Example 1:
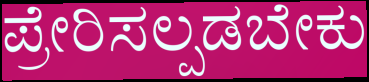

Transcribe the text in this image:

ಪ್ರೇರಿಸಲ್ಪಡಬೇಕು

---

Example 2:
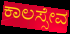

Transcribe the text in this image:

ಕಾಲಸ್ಸೇವ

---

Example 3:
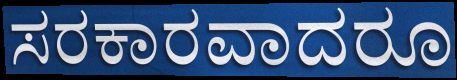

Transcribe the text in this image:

ಸರಕಾರವಾದರೂ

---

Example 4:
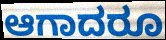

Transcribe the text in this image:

ಆಗಾದರೂ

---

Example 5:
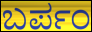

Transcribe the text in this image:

ಬರ್ಪಂ